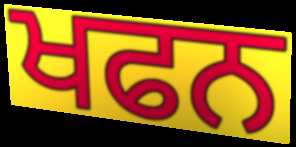
ਖਫਨ